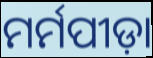
ମର୍ମପୀଡ଼ା